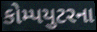
કોમ્પયુટરના